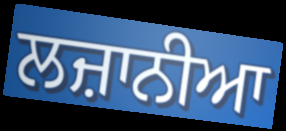
ਲਜ਼ਾਨੀਆ